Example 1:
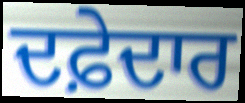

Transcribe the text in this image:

ਦਫ਼ੇਦਾਰ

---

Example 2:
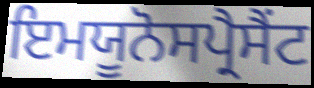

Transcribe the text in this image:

ਇਮਯੂਨੋਸਪ੍ਰੈਸੈਂਟ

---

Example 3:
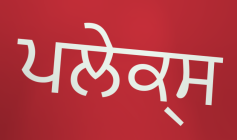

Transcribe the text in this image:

ਪਲੇਕ੍ਸ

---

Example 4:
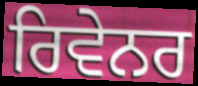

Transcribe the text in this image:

ਰਿਵੇਨਰ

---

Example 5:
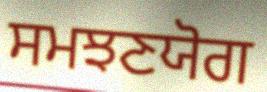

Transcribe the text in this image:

ਸਮਝਣਯੋਗ